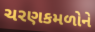
ચરણકમળોને